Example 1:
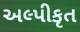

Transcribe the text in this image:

અલ્પીકૃત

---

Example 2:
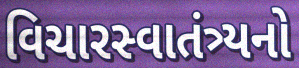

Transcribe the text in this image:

વિચારસ્વાતંત્ર્યનો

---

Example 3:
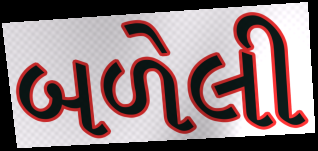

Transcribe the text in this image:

બળેલી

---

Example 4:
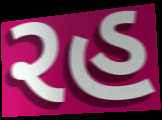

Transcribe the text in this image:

રહ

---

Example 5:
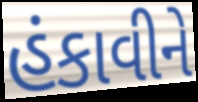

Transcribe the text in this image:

હંકાવીને